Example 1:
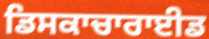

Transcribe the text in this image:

ਡਿਸਕਾਚਾਰਾਈਡ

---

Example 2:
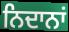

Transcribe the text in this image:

ਨਿਦਾਨਾਂ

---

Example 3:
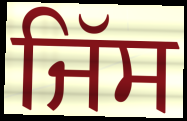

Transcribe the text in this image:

ਜਿੱਸ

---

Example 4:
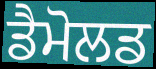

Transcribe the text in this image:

ਡੈਮੋਲਡ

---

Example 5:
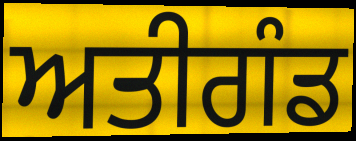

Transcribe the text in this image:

ਅਤੀਗੰਡ